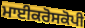
ਮਾਈਕਰੋਸਕੋਪੀ